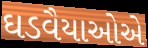
ઘડવૈયાઓએ